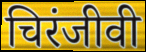
चिरंजीवी